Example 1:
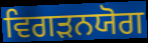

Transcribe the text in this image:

ਵਿਗੜਨਯੋਗ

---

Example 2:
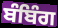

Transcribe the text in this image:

ਬੰਬਿੰਗ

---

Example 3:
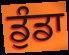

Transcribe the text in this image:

ਡੁੰਡਾ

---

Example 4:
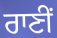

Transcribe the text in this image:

ਰਾਣੀਂ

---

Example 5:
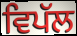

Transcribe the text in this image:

ਵਿਪੱਲ